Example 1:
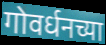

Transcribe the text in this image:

गोवर्धनच्या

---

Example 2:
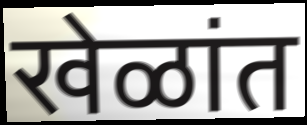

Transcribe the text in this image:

खेळांत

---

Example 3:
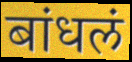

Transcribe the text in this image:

बांधलं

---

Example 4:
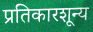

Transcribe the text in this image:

प्रतिकारशून्य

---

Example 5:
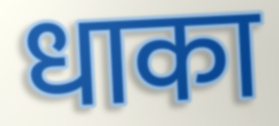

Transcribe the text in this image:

धाका